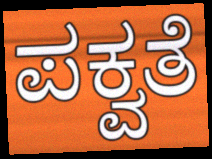
ಪಕ್ವತೆ